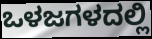
ಒಳಜಗಳದಲ್ಲಿ